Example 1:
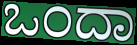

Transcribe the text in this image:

ಒಂದಾ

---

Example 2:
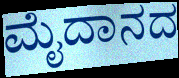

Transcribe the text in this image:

ಮೈದಾನದ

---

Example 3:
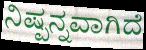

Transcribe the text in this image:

ನಿಷ್ಪನ್ನವಾಗಿದೆ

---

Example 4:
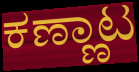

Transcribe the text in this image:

ಕಣ್ಣಾಟ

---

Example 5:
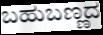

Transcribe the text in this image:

ಬಹುಬಣ್ಣದ